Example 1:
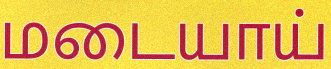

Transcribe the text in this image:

மடையாய்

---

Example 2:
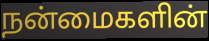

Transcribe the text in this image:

நன்மைகளின்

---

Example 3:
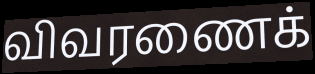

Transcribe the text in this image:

விவரணைக்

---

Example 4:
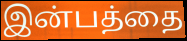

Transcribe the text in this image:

இன்பத்தை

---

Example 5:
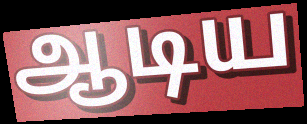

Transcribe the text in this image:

ஆடிய